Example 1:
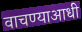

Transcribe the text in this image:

वाचण्याआधी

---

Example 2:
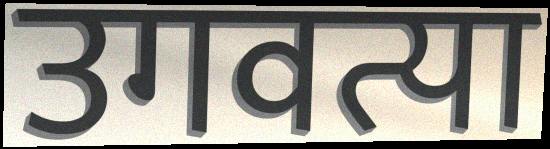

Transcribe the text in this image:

उगवत्या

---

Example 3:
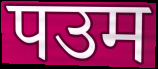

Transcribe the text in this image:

पउम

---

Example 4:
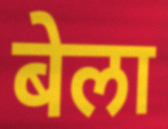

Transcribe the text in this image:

बेला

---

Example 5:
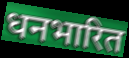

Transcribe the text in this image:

धनभारित